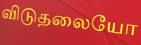
விடுதலையோ